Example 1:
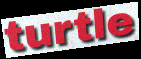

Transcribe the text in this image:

turtle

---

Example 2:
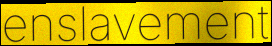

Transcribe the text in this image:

enslavement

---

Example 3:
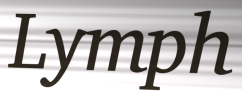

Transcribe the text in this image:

Lymph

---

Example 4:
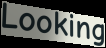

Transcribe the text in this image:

Looking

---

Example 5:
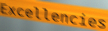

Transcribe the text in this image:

Excellencies